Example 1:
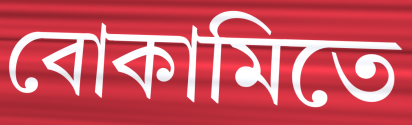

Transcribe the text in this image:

বোকামিতে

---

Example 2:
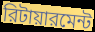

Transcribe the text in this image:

রিটায়ারমেন্ট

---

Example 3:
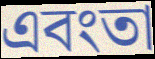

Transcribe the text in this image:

এবংতা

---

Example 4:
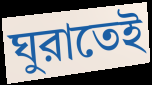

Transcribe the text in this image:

ঘুরাতেই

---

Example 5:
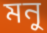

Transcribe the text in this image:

মনু